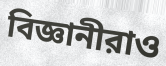
বিজ্ঞানীরাও